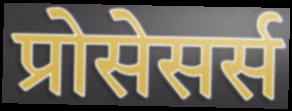
प्रोसेसर्स